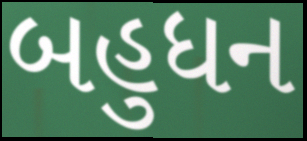
બહુધન